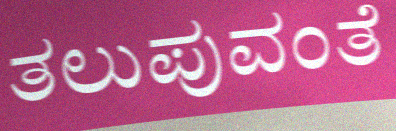
ತಲುಪುವಂತೆ